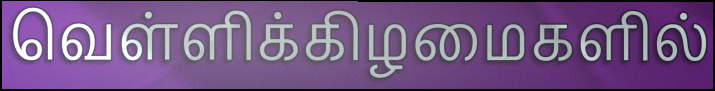
வெள்ளிக்கிழமைகளில்